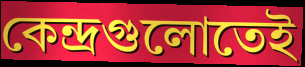
কেন্দ্রগুলোতেই